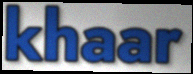
khaar